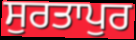
ਸੁਰਤਾਪੁਰ